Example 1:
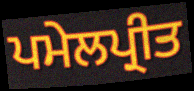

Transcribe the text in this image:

ਪਮੇਲਪ੍ਰੀਤ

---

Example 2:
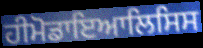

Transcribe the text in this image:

ਹੀਮੋਡਾਇਆਲਿਸਿਸ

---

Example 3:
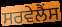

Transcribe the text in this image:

ਸਰਵੇਲੈਂਸ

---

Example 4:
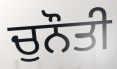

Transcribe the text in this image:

ਚੁਨੌਤੀ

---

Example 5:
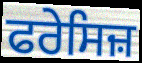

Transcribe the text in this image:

ਫਰੇਸਿਜ਼